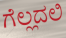
ಗೆಲ್ಲದಲಿ